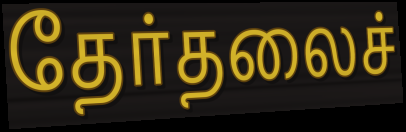
தேர்தலைச்